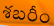
శబరీం